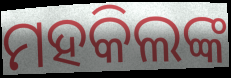
ମହକିଲଙ୍କ